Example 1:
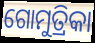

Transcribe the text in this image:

ଗୋମୁତ୍ରିକା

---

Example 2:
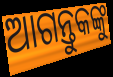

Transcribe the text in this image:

ଆଗନ୍ତୁକଙ୍କୁ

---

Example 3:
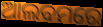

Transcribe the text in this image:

ଆଲବମରେ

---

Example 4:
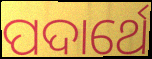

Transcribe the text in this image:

ପଦାର୍ଥେ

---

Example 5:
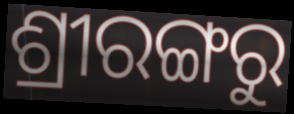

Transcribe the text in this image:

ଶ୍ରୀରଙ୍ଗରୁ